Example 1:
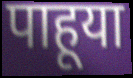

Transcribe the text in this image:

पाहूया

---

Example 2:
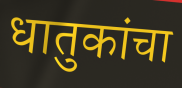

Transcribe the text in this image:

धातुकांचा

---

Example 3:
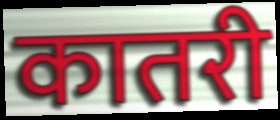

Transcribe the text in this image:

कातरी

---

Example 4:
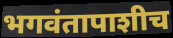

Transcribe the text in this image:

भगवंतापाशीच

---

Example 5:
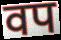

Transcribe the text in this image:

वप